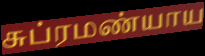
சுப்ரமண்யாய